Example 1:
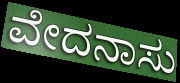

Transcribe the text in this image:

ವೇದನಾಸು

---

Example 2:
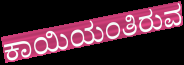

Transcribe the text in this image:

ಕಾಯಿಯಂತಿರುವ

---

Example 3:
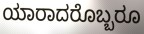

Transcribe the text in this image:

ಯಾರಾದರೊಬ್ಬರೂ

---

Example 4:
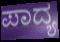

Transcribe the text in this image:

ಪಾದ್ಯ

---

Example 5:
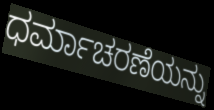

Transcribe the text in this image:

ಧರ್ಮಾಚರಣೆಯನ್ನು